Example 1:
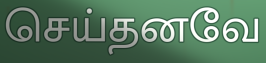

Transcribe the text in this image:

செய்தனவே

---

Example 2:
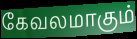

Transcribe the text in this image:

கேவலமாகும்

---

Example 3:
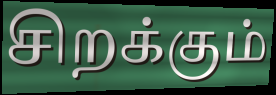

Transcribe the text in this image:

சிறக்கும்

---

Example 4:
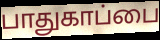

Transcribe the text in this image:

பாதுகாப்பை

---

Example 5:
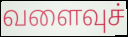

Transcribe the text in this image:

வளைவுச்